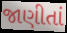
જાણીતાં